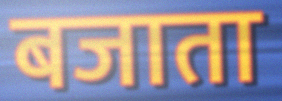
बजाता